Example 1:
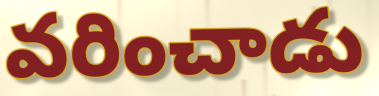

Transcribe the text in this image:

వరించాడు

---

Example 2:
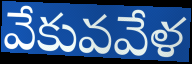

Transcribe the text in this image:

వేకువవేళ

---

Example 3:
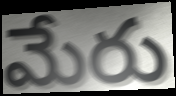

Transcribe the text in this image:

మేరు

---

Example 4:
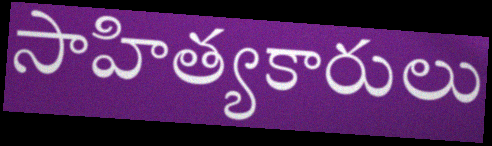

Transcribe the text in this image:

సాహిత్యకారులు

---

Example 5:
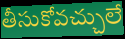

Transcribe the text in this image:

తీసుకోవచ్చులే